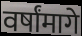
वर्षांमागे